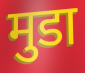
मुडा